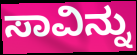
ಸಾವಿನ್ನು